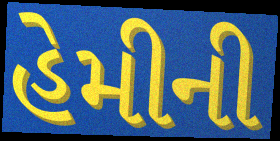
હેમીની